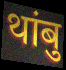
थांबु